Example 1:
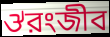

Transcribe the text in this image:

ঔরংজীব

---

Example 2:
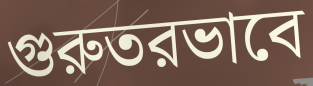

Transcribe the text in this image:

গুরুতরভাবে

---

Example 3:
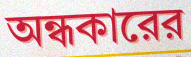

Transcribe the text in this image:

অন্ধকারের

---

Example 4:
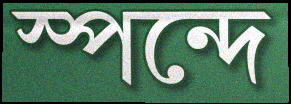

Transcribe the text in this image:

স্পন্দে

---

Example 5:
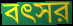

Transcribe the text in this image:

বৎসর